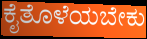
ಕೈತೊಳೆಯಬೇಕು